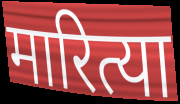
मारित्या